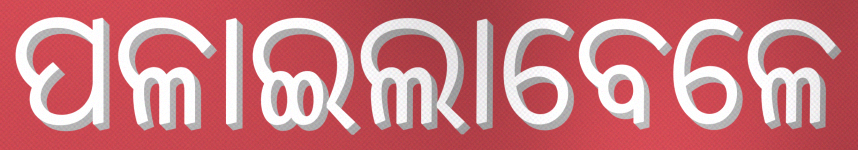
ପଳାଇଲାବେଳେ